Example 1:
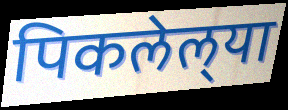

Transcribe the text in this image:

पिकलेल्या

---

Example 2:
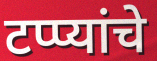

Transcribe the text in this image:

टप्प्यांचे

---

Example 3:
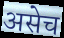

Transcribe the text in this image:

असेच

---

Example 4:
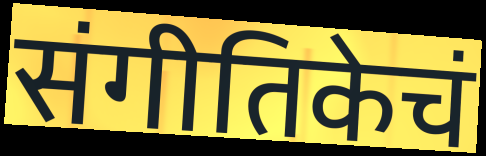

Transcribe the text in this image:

संगीतिकेचं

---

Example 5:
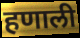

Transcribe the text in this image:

हणाली